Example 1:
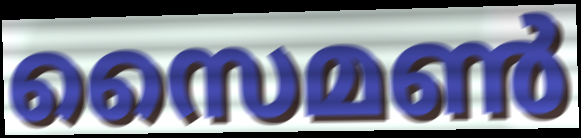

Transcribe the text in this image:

സൈമൺ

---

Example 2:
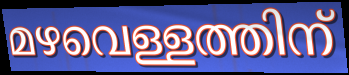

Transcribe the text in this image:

മഴവെള്ളത്തിന്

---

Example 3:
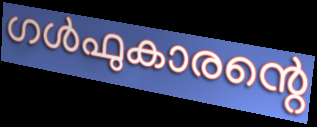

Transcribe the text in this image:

ഗൾഫുകാരന്റെ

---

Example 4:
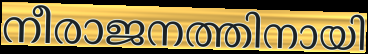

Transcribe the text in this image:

നീരാജനത്തിനായി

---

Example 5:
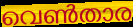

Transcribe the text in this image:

വെൺതാര